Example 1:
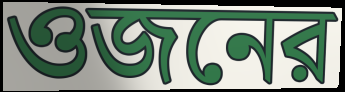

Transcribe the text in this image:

ওজনের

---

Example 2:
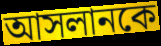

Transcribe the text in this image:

আসলানকে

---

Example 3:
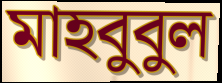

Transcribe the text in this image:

মাহবুবুল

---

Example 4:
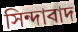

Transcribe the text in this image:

সিন্দাবাদ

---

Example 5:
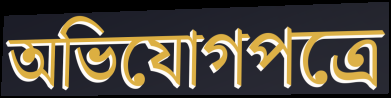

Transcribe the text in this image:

অভিযোগপত্রে